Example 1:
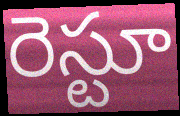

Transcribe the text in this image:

రెస్టూ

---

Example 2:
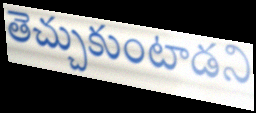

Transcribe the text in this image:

తెచ్చుకుంటాడని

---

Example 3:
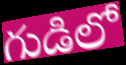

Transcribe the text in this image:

గుడిలో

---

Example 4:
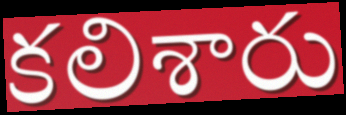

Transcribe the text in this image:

కలిశారు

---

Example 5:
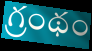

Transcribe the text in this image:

గ్రంథం